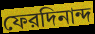
ফেরদিনান্দ